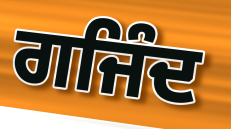
ਗਜਿੰਦ